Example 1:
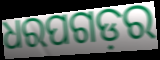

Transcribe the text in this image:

ଧରପଗଡ଼ର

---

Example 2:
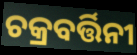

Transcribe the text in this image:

ଚକ୍ରବର୍ତ୍ତିନୀ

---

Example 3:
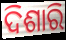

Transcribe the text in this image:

ଦିଶାରି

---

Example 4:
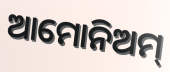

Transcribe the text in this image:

ଆମୋନିଅମ୍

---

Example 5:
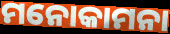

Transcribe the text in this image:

ମନୋକାମନା